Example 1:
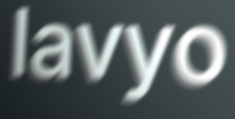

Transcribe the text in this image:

lavyo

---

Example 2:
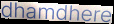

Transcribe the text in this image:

dhamdhere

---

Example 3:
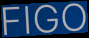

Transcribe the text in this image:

FIGO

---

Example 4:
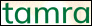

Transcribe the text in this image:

tamra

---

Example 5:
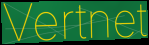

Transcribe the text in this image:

Vertnet